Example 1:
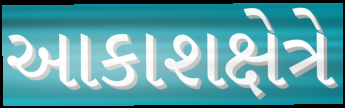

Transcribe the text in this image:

આકાશક્ષેત્રે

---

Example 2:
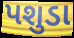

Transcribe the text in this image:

પશુડા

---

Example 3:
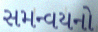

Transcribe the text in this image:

સમન્વયનો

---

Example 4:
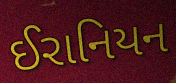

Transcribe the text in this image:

ઈરાનિયન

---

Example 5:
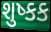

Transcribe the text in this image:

શુષ્કક